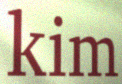
kim